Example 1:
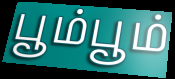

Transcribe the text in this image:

பூம்பூம்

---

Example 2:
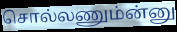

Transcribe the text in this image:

சொல்லணும்ன்னு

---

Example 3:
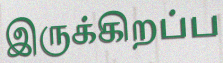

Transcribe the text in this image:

இருக்கிறப்ப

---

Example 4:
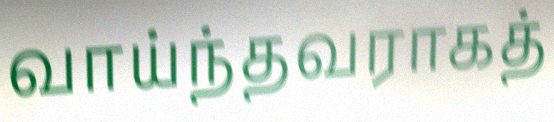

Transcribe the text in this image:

வாய்ந்தவராகத்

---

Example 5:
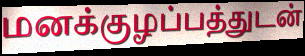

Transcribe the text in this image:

மனக்குழப்பத்துடன்